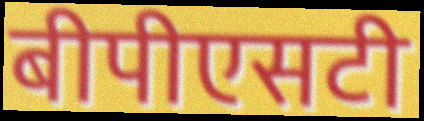
बीपीएसटी